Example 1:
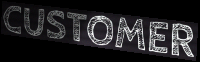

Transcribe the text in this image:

CUSTOMER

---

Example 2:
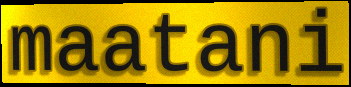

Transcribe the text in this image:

maatani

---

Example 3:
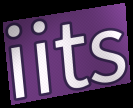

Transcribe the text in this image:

iits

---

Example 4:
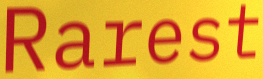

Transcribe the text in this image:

Rarest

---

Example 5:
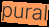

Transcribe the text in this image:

pural